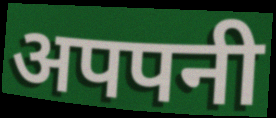
अपपनी